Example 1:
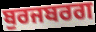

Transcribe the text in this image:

ਬੁਰਜਬਰਗ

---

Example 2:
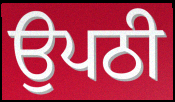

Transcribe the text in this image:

ਉਪਠੀ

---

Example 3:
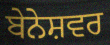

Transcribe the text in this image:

ਬੇਨੇਸ਼ਵਰ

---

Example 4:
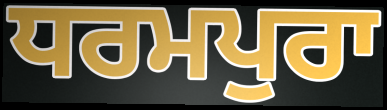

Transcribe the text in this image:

ਧਰਮਪੁਰਾ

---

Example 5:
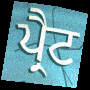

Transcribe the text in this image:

ਪ੍ਰੈਟ